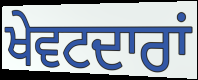
ਖੇਵਟਦਾਰਾਂ